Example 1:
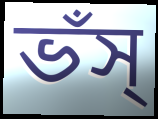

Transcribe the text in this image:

ভঁস্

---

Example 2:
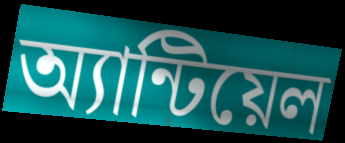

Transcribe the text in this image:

অ্যান্টিয়েল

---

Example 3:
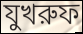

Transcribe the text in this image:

যুখরুফ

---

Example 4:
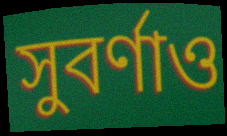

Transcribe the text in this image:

সুবর্ণাও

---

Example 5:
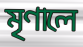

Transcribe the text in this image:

মৃণালে